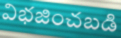
విభజించబడి